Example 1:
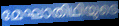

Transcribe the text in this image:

മേഘാതിഥിയുടെ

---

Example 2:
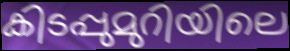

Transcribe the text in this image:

കിടപ്പുമുറിയിലെ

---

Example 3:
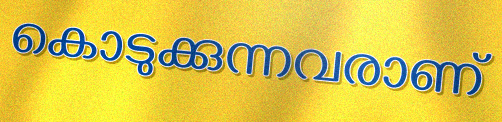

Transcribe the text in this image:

കൊടുക്കുന്നവരാണ്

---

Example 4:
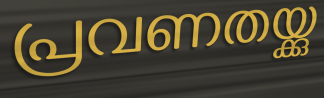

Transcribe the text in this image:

പ്രവണതയ്ക്കു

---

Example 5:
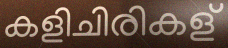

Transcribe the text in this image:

കളിചിരികള്